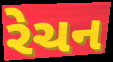
રેચન